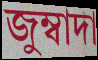
জুম্বাদা